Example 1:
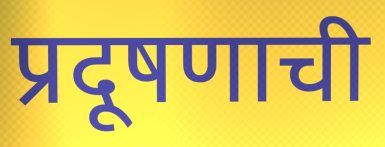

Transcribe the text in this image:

प्रदूषणाची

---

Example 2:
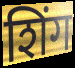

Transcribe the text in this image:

शिंग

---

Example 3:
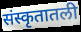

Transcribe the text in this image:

संस्कृतातली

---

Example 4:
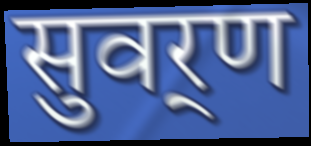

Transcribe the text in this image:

सुवर्ण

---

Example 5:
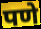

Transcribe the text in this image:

पणे